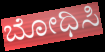
ಬೋಧಿಸಿ